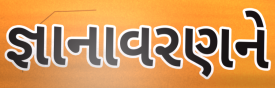
જ્ઞાનાવરણને